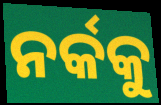
ନର୍କକୁ